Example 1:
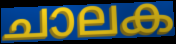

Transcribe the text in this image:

ചാലക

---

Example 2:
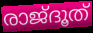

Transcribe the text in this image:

രാജ്ദൂത്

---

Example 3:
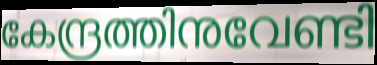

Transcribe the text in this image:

കേന്ദ്രത്തിനുവേണ്ടി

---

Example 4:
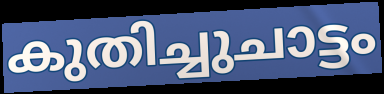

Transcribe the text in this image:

കുതിച്ചുചാട്ടം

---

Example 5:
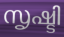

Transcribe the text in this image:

സൃഷ്ടി